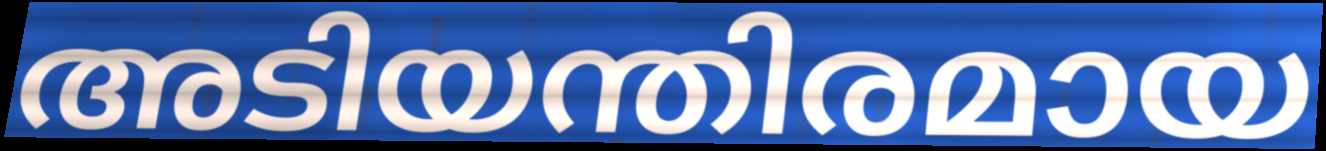
അടിയന്തിരമായ